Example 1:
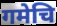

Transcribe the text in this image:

गमेचि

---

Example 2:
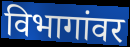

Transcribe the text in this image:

विभागांवर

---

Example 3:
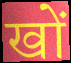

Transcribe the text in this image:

खों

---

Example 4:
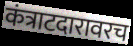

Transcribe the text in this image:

कंत्राटदारावरच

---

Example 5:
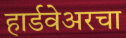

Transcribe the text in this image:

हार्डवेअरचा